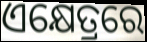
ଏକ୍ଷେତ୍ରରେ